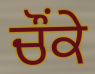
ਚੌਂਕੇ